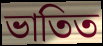
ভাতিত